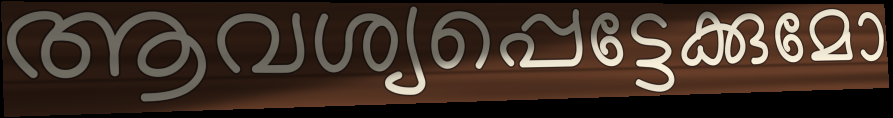
ആവശ്യപ്പെട്ടേക്കുമോ